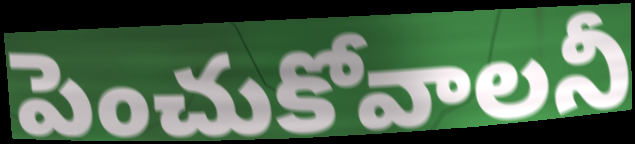
పెంచుకోవాలనీ